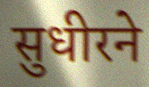
सुधीरने